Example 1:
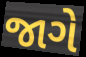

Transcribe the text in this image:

જાગે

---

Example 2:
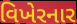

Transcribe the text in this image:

વિખેરનાર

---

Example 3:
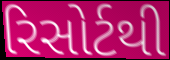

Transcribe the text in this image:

રિસોર્ટથી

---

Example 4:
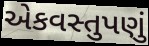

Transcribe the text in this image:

એકવસ્તુપણું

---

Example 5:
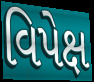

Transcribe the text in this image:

વિપેક્ષ